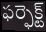
ఫర్ఫెక్ట్